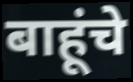
बाहूंचे